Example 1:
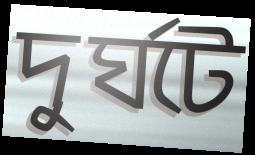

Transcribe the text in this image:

দুর্ঘটে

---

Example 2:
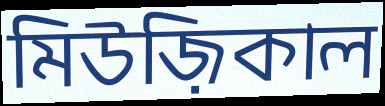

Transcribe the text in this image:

মিউজ়িকাল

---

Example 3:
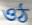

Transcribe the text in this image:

ওঠ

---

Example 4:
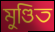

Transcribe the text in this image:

মুণ্ডিত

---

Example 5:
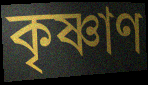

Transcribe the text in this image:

কৃষ্ণাণ